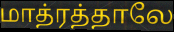
மாத்ரத்தாலே